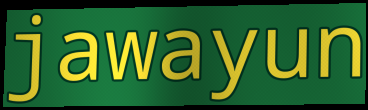
jawayun